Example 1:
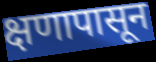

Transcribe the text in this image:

क्षणापासून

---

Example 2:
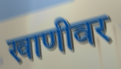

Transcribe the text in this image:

खाणीवर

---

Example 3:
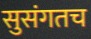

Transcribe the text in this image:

सुसंगतच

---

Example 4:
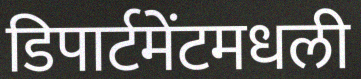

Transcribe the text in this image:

डिपार्टमेंटमधली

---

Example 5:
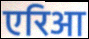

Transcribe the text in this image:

एरिआ